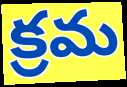
క్రమ